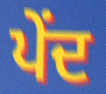
ਪੇਂਦ